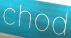
chod